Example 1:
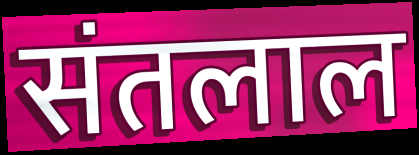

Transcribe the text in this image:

संतलाल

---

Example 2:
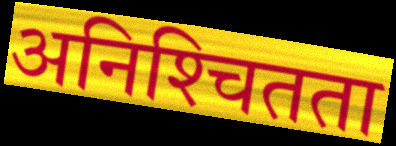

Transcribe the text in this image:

अनिश्‍चितता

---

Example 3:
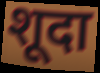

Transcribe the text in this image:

शूदा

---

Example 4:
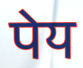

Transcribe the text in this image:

पेय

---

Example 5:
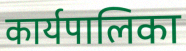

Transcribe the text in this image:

कार्यपालिका